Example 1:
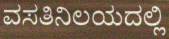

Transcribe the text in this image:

ವಸತಿನಿಲಯದಲ್ಲಿ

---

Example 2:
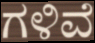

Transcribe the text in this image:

ಗಳಿವೆ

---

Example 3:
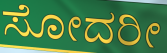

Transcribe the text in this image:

ಸೋದರೀ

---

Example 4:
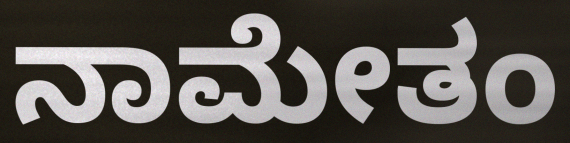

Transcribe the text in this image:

ನಾಮೇತಂ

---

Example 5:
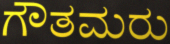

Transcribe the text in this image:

ಗೌತಮರು